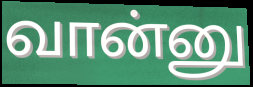
வான்னு